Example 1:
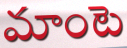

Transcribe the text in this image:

మాంటె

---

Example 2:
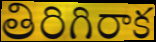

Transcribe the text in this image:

తిరిగిరాక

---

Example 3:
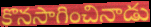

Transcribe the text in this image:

కొనసాగించినాడు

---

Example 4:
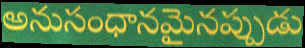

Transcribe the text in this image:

అనుసంధానమైనప్పుడు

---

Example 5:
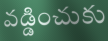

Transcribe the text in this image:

వడ్డించుకు